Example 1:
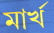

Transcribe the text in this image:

মার্খ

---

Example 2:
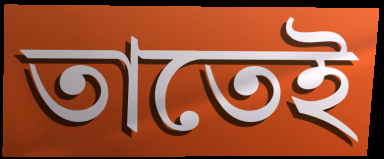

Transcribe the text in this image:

তাতেই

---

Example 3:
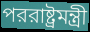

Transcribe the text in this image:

পররাষ্ট্রমন্ত্রী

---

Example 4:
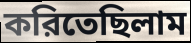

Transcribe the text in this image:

করিতেছিলাম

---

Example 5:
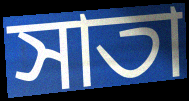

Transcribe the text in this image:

সাতা